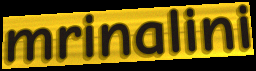
mrinalini